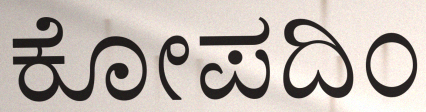
ಕೋಪದಿಂ